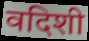
वदिशी